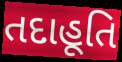
તદાહૂતિ